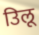
उिलू